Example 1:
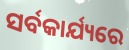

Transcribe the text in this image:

ସର୍ବକାର୍ଯ୍ୟରେ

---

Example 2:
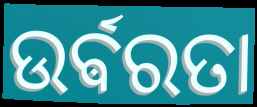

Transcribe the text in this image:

ଉର୍ଵରତା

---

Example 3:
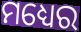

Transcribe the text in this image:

ମଧ୍ୟେର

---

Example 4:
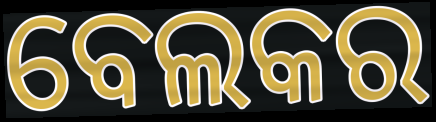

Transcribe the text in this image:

ବେଲକର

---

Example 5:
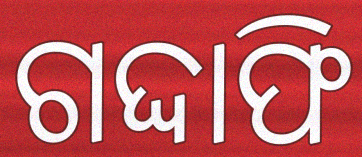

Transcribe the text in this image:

ଗଦ୍ଦାଫି